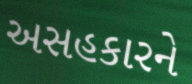
અસહકારને